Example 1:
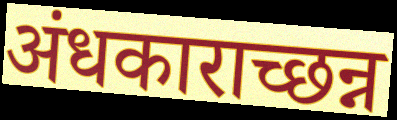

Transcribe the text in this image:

अंधकाराच्छन्न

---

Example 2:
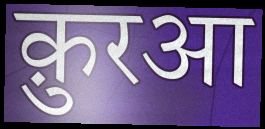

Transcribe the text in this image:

क़ुरआ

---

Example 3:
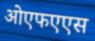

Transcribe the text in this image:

ओएफएएस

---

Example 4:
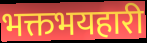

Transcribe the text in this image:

भक्तभयहारी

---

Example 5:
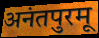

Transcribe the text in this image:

अनंतपुरमू